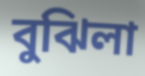
বুঝিলা